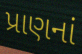
પ્રાણનાં